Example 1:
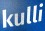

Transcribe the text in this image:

kulli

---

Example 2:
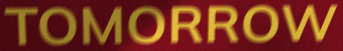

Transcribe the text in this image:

TOMORROW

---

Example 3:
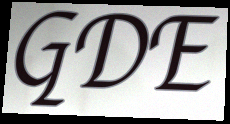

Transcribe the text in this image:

GDE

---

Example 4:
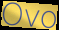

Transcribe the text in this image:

Ovo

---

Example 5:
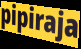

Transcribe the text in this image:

pipiraja